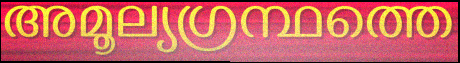
അമൂല്യഗ്രന്ഥത്തെ